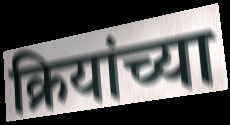
क्रियांच्या